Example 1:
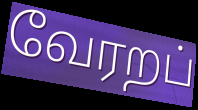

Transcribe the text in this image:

வேரறப்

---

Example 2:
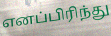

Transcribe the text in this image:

எனப்பிரிந்து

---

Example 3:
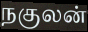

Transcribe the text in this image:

நகுலன்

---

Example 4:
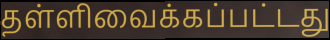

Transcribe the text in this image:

தள்ளிவைக்கப்பட்டது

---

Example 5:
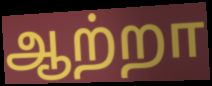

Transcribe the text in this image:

ஆற்றா